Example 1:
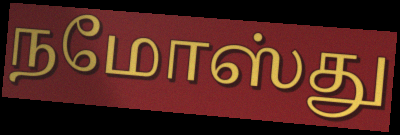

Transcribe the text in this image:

நமோஸ்து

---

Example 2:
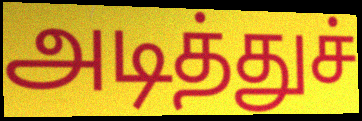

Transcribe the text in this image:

அடித்துச்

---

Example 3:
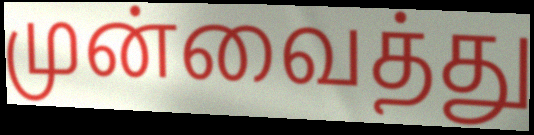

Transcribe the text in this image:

முன்வைத்து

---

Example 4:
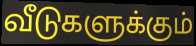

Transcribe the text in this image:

வீடுகளுக்கும்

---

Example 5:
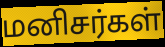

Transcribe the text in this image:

மனிசர்கள்